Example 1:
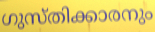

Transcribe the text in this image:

ഗുസ്തിക്കാരനും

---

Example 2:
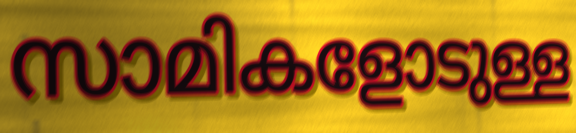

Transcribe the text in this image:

സാമികളോടുള്ള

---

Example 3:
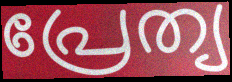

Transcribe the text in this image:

പ്രേത്യ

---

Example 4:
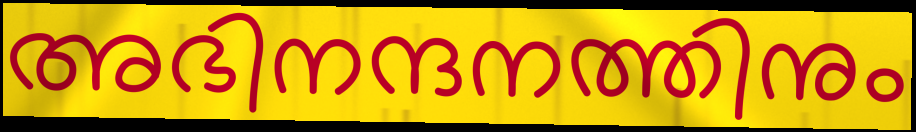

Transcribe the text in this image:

അഭിനന്ദനത്തിനും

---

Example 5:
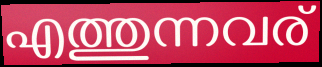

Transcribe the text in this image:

എത്തുന്നവര്